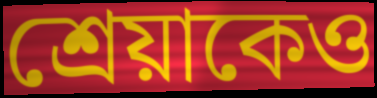
শ্রেয়াকেও